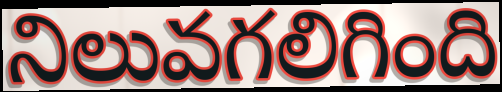
నిలువగలిగింది